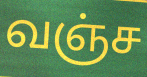
வஞ்ச